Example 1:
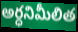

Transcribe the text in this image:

అర్ధనిమీలిత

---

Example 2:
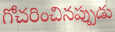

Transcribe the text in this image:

గోచరించినప్పుడు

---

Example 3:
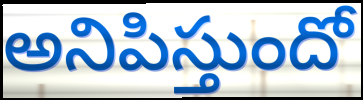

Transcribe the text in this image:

అనిపిస్తుందో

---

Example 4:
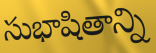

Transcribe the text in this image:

సుభాషితాన్ని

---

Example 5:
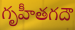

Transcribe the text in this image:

గృహీతగదౌ